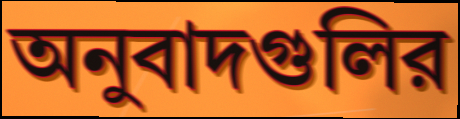
অনুবাদগুলির